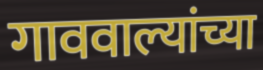
गाववाल्यांच्या